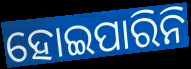
ହୋଇପାରିନି